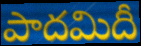
పాదమిదీ